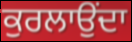
ਕੁਰਲਾਉਂਦਾ